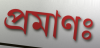
প্রমাণঃ